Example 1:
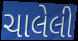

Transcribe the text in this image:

ચાલેલી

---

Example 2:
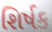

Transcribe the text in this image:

શિર્ષક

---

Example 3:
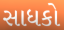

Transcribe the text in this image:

સાધકો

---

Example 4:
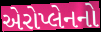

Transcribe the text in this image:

એરોપ્લેનનો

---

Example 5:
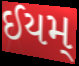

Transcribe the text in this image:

ઈયમ્